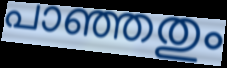
പാഞ്ഞതും